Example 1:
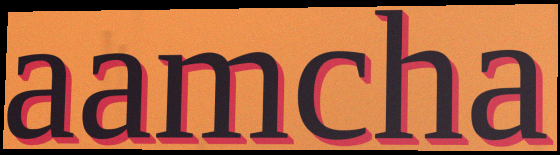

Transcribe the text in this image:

aamcha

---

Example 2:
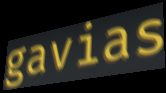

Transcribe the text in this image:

gavias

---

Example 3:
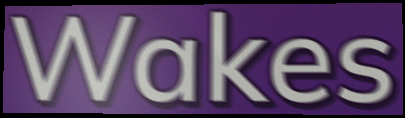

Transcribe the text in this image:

Wakes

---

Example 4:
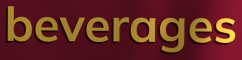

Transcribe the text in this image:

beverages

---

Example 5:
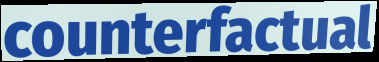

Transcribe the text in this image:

counterfactual